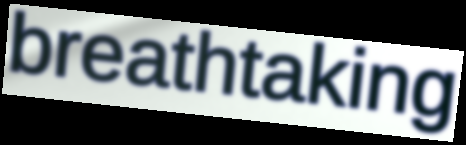
breathtaking